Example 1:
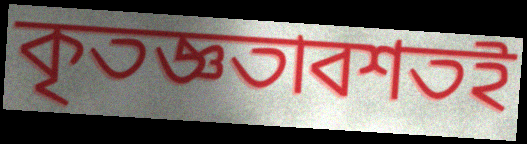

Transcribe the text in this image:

কৃতজ্ঞতাবশতই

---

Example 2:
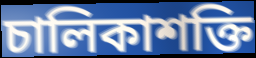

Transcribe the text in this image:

চালিকাশক্তি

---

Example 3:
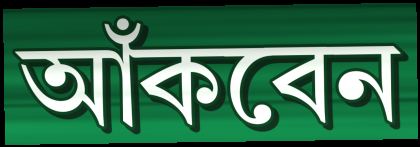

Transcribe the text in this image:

আঁকবেন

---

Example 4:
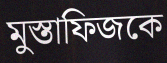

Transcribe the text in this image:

মুস্তাফিজকে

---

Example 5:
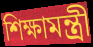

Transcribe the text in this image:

শিক্ষামন্ত্রী